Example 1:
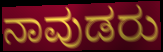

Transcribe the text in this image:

ನಾವುಡರು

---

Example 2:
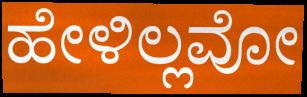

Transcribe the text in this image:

ಹೇಳಿಲ್ಲವೋ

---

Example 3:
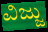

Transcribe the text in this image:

ವಿಜ್ಜು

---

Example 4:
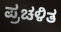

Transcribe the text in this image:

ಪ್ರಚಳಿತ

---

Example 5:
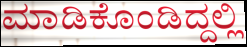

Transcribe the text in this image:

ಮಾಡಿಕೊಂಡಿದ್ದಲ್ಲಿ